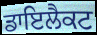
ਡਾਇਲੈਕਟ